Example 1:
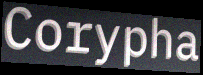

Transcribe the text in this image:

Corypha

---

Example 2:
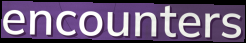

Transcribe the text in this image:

encounters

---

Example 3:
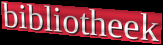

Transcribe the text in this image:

bibliotheek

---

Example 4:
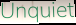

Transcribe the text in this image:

Unquiet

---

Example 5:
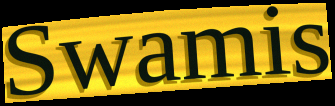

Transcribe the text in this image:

Swamis